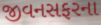
જીવનસફરના